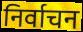
निर्वाचन